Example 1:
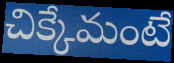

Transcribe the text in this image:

చిక్కేమంటే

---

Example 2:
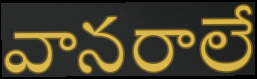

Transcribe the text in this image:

వానరాలే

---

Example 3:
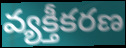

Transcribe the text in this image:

వ్యక్తీకరణ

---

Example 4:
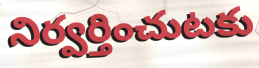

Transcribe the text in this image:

నిర్వర్తించుటకు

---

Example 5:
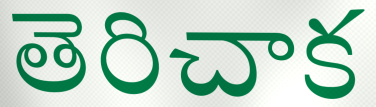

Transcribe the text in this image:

తెరిచాక